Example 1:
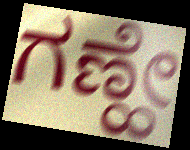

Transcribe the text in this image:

ಗಣ್ಹೇ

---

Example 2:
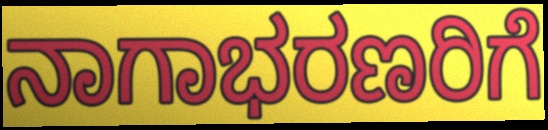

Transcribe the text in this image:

ನಾಗಾಭರಣರಿಗೆ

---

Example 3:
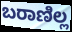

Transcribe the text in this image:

ಬರಾಣಿಲ್ಲ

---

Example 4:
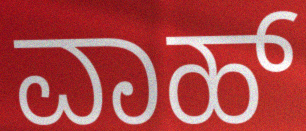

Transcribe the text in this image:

ವಾಹ್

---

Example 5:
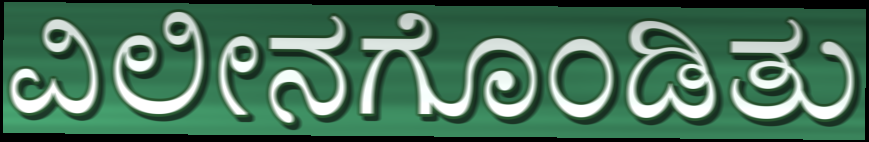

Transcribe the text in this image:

ವಿಲೀನಗೊಂಡಿತು